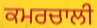
ਕਮਰਚਾਲੀ